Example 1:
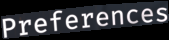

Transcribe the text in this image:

Preferences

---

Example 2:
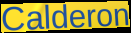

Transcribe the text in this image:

Calderon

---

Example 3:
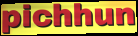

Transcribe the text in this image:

pichhun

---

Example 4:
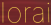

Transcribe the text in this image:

lorai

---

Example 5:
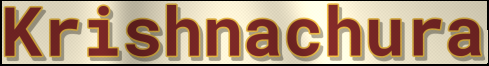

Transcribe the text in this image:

Krishnachura